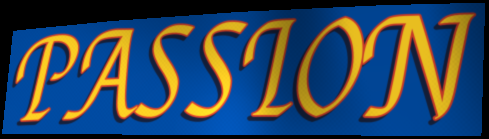
PASSION